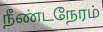
நீண்டநேரம்